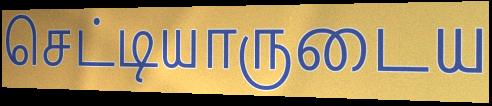
செட்டியாருடைய